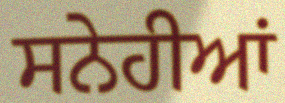
ਸਨੇਹੀਆਂ